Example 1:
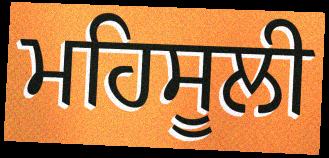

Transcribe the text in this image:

ਮਹਿਸੂਲੀ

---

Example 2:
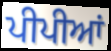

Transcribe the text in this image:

ਪੀਪੀਆਂ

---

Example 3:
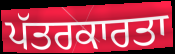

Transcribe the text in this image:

ਪੱਤਰਕਾਰਤਾ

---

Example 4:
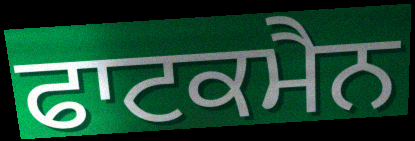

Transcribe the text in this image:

ਫਾਟਕਮੈਨ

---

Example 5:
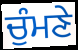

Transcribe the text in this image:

ਚੁੰਮਣੇ